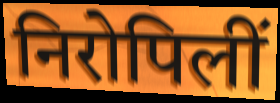
निरोपिलीं